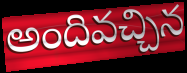
అందివచ్చిన